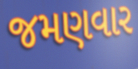
જમણવાર